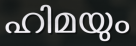
ഹിമയും